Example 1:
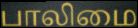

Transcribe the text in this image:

பாலிமை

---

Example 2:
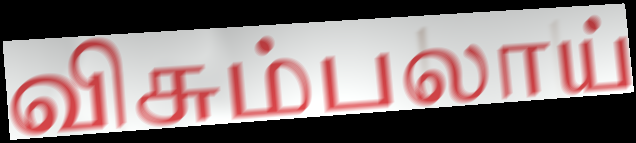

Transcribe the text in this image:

விசும்பலாய்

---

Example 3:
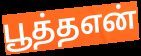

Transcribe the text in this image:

பூத்தஎன்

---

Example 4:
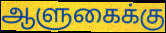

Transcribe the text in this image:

ஆளுகைக்கு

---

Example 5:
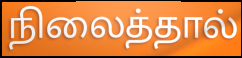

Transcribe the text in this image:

நிலைத்தால்